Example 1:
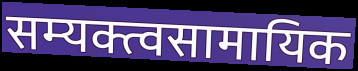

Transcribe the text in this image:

सम्यक्त्वसामायिक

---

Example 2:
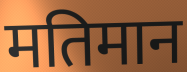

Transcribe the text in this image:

मतिमान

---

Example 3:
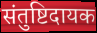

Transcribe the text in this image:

संतुष्टिदायक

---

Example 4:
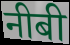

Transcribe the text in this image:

नीबी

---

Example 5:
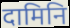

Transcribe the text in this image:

दामिनि